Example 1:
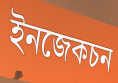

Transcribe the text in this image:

ইনজেকচন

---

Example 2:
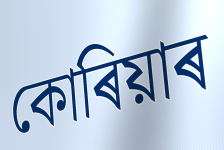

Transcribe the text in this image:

কোৰিয়াৰ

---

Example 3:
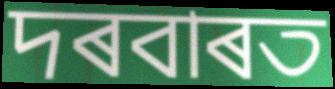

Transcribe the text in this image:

দৰবাৰত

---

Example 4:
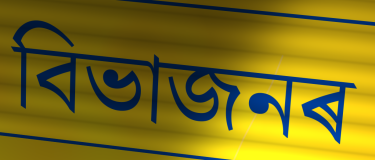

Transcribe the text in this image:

বিভাজনৰ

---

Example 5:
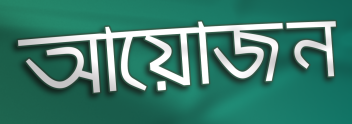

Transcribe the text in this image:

আয়োজন